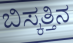
ಬಿಸ್ಕತ್ತಿನ